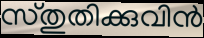
സ്തുതിക്കുവിൻ